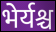
भेर्यश्च